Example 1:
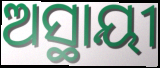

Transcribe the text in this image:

ଅସ୍ଥାୟୀ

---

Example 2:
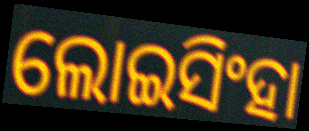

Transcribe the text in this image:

ଲୋଇସିଂହା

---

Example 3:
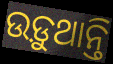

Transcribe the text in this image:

ଉଡ଼ୁଥାନ୍ତି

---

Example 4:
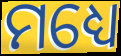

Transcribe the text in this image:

ମଧ୍ୟେ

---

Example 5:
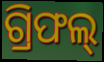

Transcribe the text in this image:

ଗ୍ରିଫଲ୍